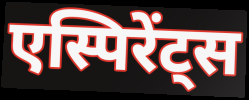
एस्पिरेंट्स